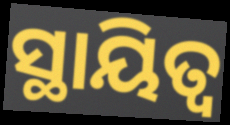
ସ୍ଥାୟିତ୍ୱ